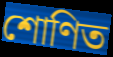
শোণিত